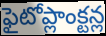
ఫైటోప్లాంక్టన్ల